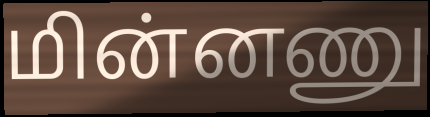
மின்னணு